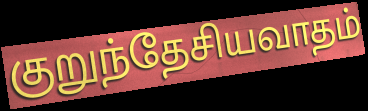
குறுந்தேசியவாதம்